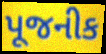
પૂજનીક